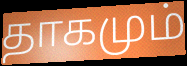
தாகமும்